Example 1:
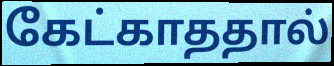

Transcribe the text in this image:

கேட்காததால்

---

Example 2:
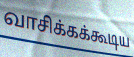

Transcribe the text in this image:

வாசிக்கக்கூடிய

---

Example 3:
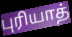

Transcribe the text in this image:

புரியாத்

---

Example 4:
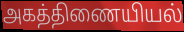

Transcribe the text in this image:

அகத்திணையியல்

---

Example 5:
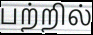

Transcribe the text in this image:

பற்றில்